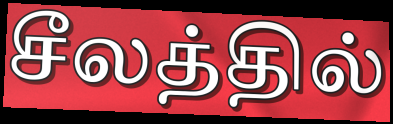
சீலத்தில்